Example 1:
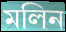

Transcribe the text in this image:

মলিন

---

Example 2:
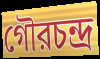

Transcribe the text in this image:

গৌরচন্দ্র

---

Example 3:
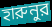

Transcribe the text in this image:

হারুনুর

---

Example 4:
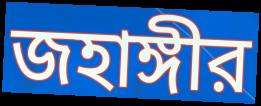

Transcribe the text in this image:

জহাঙ্গীর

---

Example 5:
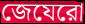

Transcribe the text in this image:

জেযেরো